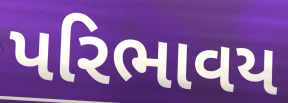
પરિભાવય